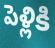
పెళ్లికి